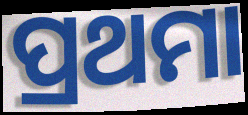
ପ୍ରଥମା